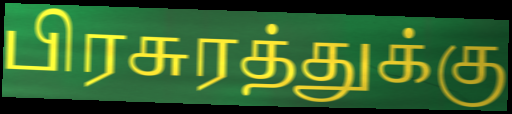
பிரசுரத்துக்கு